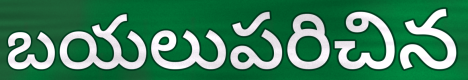
బయలుపరిచిన